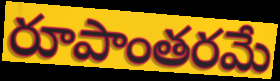
రూపాంతరమే